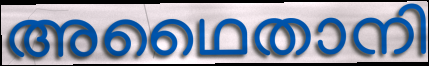
അഥൈതാനി